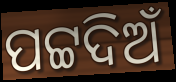
ପଟ୍ଟଦିଅଁ